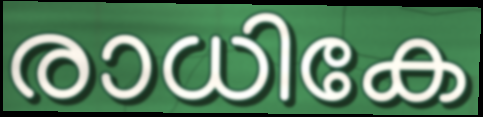
രാധികേ